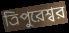
ত্রিপুরেশ্বর